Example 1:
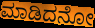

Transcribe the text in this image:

ಮಾಡಿದನೋ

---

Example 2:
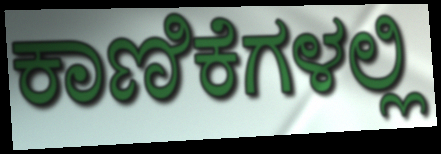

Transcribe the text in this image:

ಕಾಣಿಕೆಗಳಲ್ಲಿ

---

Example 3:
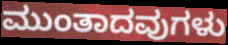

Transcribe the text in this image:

ಮುಂತಾದವುಗಳು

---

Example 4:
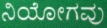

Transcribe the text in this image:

ನಿಯೋಗವು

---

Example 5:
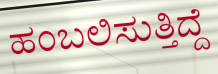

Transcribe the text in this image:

ಹಂಬಲಿಸುತ್ತಿದ್ದೆ